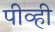
पीव्ही